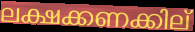
ലക്ഷക്കണക്കില്